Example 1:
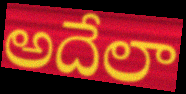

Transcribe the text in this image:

అదేలా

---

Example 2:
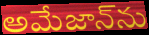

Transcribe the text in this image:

అమేజాన్‌ను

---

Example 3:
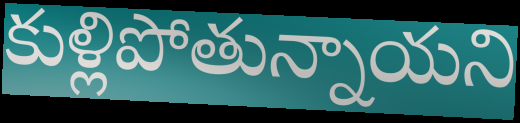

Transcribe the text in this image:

కుళ్లిపోతున్నాయని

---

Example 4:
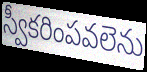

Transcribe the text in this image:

స్వీకరింపవలెను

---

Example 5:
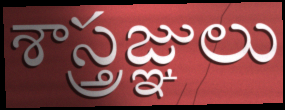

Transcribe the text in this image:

శాస్త్రజ్ఞులు